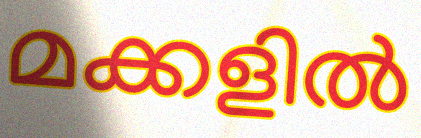
മക്കളിൽ